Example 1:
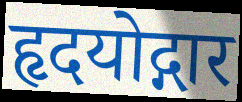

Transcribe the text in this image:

हृदयोद्गार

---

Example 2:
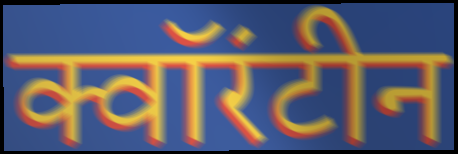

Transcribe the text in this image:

क्वॉरंटीन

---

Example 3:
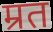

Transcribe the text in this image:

म्रत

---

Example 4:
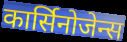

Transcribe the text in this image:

कार्सिनोजेन्स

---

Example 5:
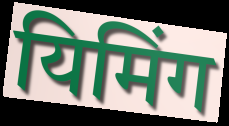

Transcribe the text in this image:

यिमिंग